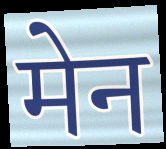
मेन